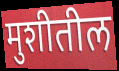
मुशीतील